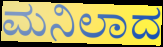
ಮನಿಲಾದ